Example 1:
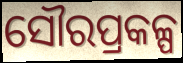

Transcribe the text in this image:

ସୌରପ୍ରକଳ୍ପ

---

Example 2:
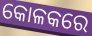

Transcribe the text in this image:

କୋଳକରେ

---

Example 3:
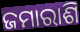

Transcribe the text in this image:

ଜମାରାଶି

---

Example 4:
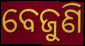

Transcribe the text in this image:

ବେଜୁଣି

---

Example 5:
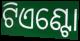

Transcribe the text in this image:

ଟିଏଣ୍ଟୋ